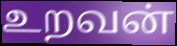
உறவன்